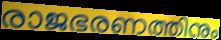
രാജഭരണത്തിനും